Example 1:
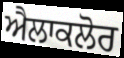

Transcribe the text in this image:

ਐਲਾਕਲੋਰ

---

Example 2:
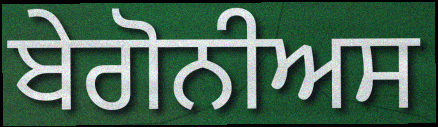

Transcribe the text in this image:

ਬੇਗੋਨੀਅਸ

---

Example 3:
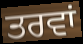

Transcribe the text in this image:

ਤਰਵਾਂ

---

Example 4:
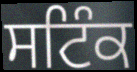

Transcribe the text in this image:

ਸਟਿੰਕ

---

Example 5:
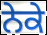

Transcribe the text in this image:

ਨੇਕੇ